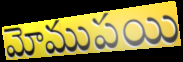
మోముపయి